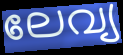
ലേവ്യ